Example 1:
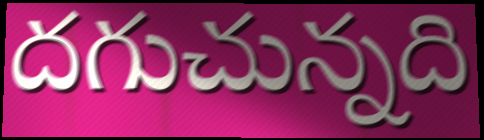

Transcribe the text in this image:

దగుచున్నది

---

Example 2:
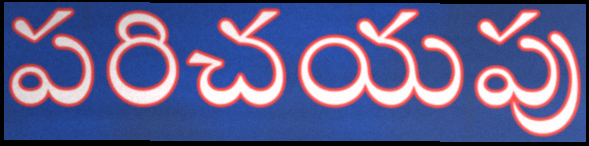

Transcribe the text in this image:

పరిచయపు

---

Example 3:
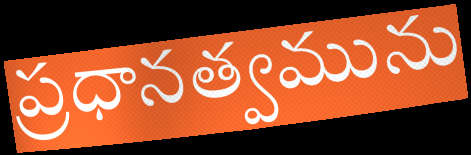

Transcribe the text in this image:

ప్రధానత్వమును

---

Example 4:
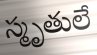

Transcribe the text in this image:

స్మృతులే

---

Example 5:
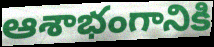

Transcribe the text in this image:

ఆశాభంగానికి